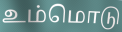
உம்மொடு